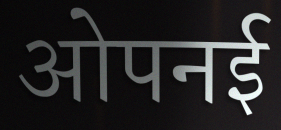
ओपनई